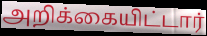
அறிக்கையிட்டார்